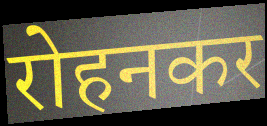
रोहनकर